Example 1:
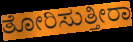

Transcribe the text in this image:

ತೋರಿಸುತ್ತೀರಾ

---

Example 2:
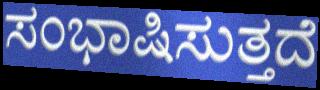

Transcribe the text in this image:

ಸಂಭಾಷಿಸುತ್ತದೆ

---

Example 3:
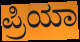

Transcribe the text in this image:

ಪ್ರಿಯಾ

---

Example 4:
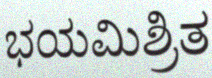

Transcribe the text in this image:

ಭಯಮಿಶ್ರಿತ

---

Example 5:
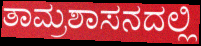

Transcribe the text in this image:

ತಾಮ್ರಶಾಸನದಲ್ಲಿ